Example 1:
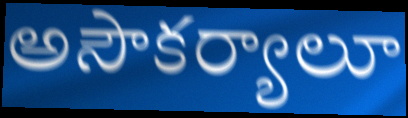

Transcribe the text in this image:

అసౌకర్యాలూ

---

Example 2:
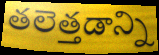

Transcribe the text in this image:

తలెత్తడాన్ని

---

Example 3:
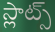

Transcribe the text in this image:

స్లాట్స్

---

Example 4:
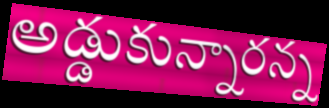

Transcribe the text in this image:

అడ్డుకున్నారన్న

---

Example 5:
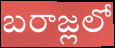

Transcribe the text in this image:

బరాజ్లలో